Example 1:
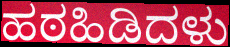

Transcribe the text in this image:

ಹಠಹಿಡಿದಳು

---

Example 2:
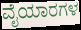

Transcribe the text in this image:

ವೈಯಾರಗಳ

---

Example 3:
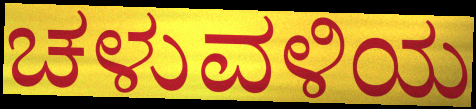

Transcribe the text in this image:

ಚಳುವಳಿಯ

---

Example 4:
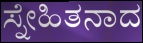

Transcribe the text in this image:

ಸ್ನೇಹಿತನಾದ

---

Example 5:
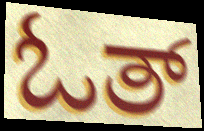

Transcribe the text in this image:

ಓತ್